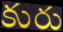
కురు